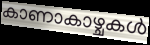
കാണാകാഴ്ചകൾ